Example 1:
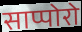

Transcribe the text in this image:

साप्पोरो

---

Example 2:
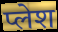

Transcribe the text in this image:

प्लेश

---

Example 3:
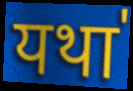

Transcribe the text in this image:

यथा॑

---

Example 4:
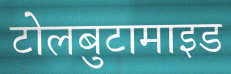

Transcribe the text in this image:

टोलबुटामाइड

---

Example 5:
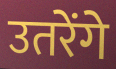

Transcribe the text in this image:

उतरेंगे